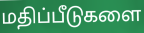
மதிப்பீடுகளை